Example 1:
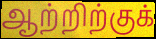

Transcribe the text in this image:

ஆற்றிற்குக்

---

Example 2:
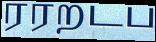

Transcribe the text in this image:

ரரறடப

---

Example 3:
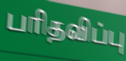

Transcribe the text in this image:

பரிதவிப்பு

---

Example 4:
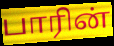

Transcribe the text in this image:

பாரின்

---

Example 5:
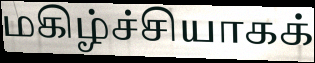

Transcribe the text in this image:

மகிழ்ச்சியாகக்